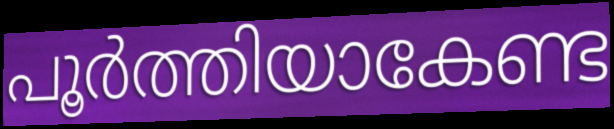
പൂർത്തിയാകേണ്ട